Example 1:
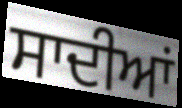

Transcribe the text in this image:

ਸਾਦੀਆਂ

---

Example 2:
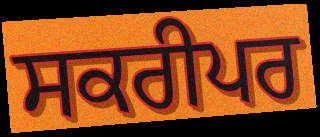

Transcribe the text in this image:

ਸਕਰੀਪਰ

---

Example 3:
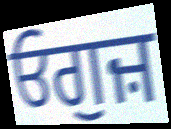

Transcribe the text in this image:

ਓਗੁਜ਼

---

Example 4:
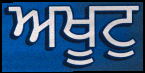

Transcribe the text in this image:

ਅਖੂਟੁ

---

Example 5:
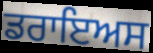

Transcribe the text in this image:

ਡਰਾਇਅਸ